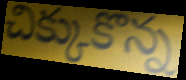
చిక్కుకొన్న